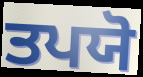
ਤਪਯੋ